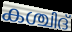
കശ്ചിദ്